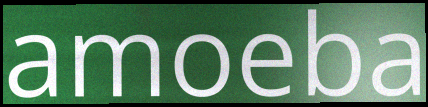
amoeba